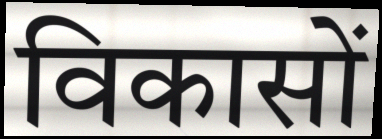
विकासों